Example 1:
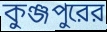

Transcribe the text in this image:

কুঞ্জপুরের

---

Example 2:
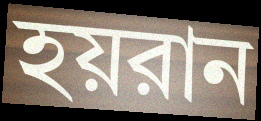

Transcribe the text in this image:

হয়রান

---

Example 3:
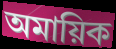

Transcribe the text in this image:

অমায়িক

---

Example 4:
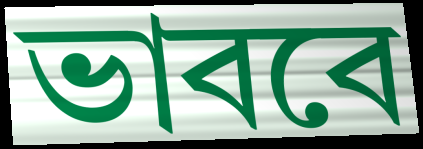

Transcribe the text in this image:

ভাববে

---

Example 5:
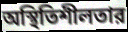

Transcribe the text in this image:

অস্থিতিশীলতার